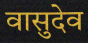
वासुदेव